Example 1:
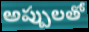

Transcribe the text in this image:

అప్పులతో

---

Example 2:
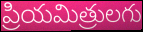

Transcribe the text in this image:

ప్రియమిత్రులగు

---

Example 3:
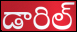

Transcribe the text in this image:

డారిల్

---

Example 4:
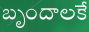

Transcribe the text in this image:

బృందాలకే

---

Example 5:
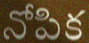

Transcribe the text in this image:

నోపిక